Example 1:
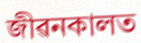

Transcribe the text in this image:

জীৱনকালত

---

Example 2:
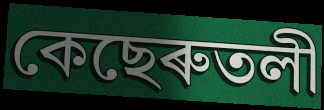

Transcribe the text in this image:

কেছেৰুতলী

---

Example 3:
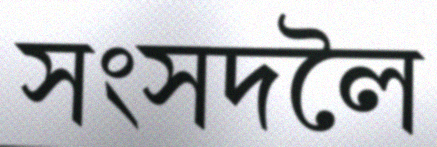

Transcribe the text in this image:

সংসদলৈ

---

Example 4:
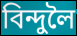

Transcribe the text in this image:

বিন্দুলৈ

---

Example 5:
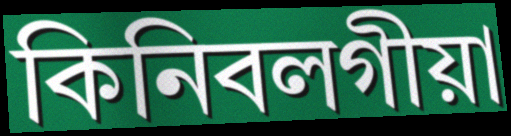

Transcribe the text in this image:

কিনিবলগীয়া